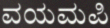
ವಯಮಪಿ